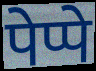
पेप्पे